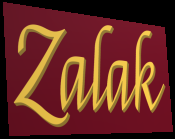
Zalak